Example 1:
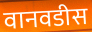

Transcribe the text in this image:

वानवडीस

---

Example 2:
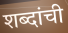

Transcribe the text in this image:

शब्दांची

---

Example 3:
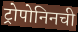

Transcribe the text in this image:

ट्रोपोनिनची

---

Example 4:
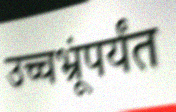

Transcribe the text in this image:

उच्चभ्रूंपर्यंत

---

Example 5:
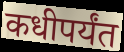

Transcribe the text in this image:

कधीपर्यंत